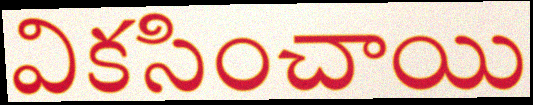
వికసించాయి